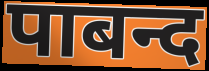
पाबन्द